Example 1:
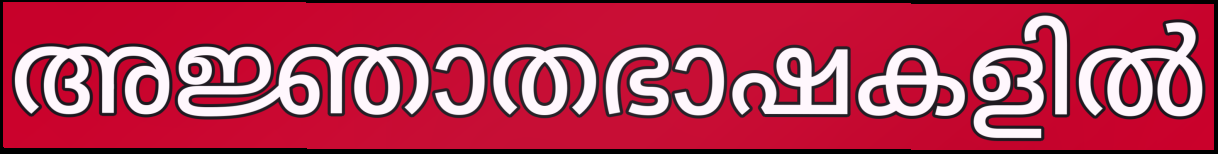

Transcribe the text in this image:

അജ്ഞാതഭാഷകളിൽ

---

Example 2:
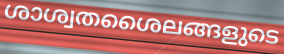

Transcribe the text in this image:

ശാശ്വതശൈലങ്ങളുടെ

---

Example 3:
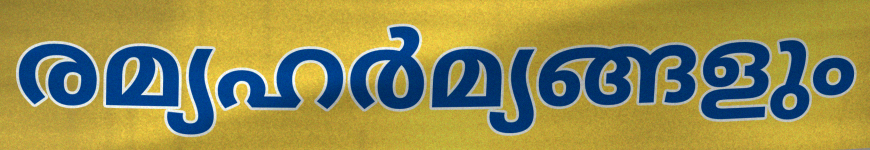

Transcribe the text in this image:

രമ്യഹർമ്യങ്ങളും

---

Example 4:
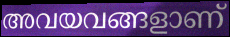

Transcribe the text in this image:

അവയവങ്ങളാണ്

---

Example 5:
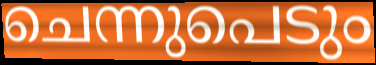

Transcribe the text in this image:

ചെന്നുപെടും